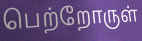
பெற்றோருள்